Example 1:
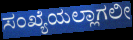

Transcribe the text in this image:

ಸಂಖ್ಯೆಯಲ್ಲಾಗಲೀ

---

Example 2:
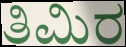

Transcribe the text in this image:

ತಿಮಿರ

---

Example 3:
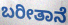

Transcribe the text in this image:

ಬರೀತಾನೆ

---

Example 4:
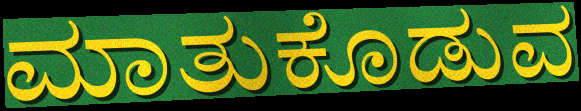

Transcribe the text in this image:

ಮಾತುಕೊಡುವ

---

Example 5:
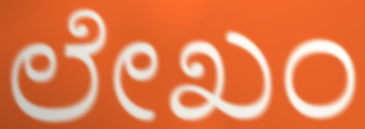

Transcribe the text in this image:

ಲೇಖಂ